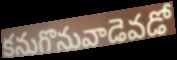
కనుగొనువాడెవడో